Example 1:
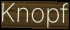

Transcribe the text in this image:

Knopf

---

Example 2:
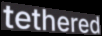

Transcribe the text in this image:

tethered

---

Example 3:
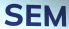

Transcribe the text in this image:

SEM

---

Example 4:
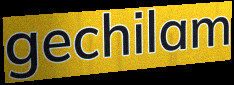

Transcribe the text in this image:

gechilam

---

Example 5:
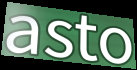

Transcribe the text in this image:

asto